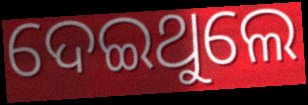
ଦେଇଥୁଲେ